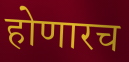
होणारच